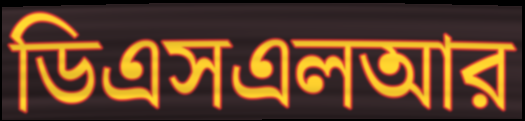
ডিএসএলআর